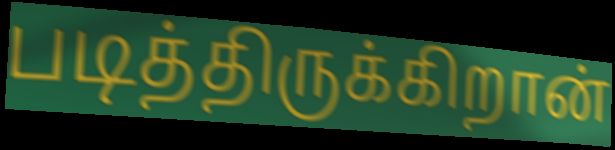
படித்திருக்கிறான்